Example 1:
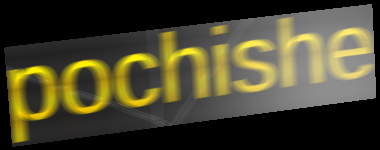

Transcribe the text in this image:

pochishe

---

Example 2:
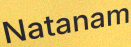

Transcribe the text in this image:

Natanam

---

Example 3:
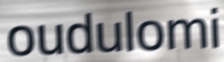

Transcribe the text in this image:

oudulomi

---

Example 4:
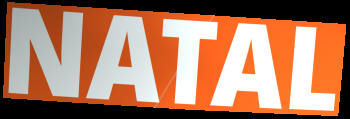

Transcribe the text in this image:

NATAL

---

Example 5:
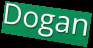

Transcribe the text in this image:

Dogan